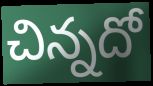
చిన్నదో